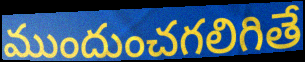
ముందుంచగలిగితే